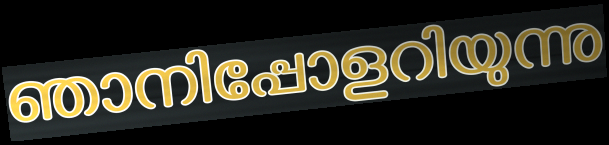
ഞാനിപ്പോളറിയുന്നു